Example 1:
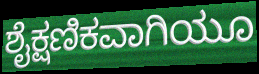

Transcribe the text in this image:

ಶೈಕ್ಷಣಿಕವಾಗಿಯೂ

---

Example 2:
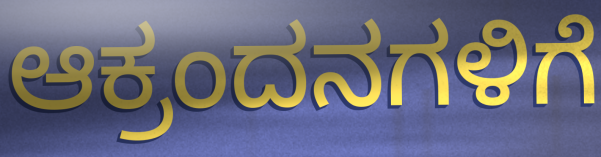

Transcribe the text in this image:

ಆಕ್ರಂದನಗಳಿಗೆ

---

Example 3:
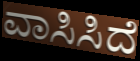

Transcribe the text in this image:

ವಾಸಿಸಿದೆ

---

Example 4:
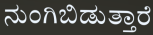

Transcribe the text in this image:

ನುಂಗಿಬಿಡುತ್ತಾರೆ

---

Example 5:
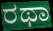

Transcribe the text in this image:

ರಥಾ